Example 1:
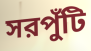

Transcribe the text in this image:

সরপুঁটি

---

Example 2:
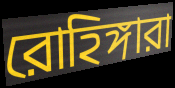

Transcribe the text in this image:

রোহিঙ্গারা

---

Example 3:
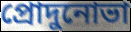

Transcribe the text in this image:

প্রোদুনোভা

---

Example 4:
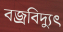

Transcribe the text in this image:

বজ্রবিদ্যুৎ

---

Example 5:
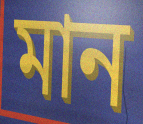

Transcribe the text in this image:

মান